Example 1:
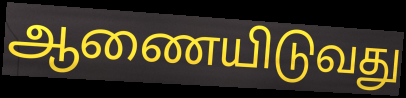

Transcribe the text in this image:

ஆணையிடுவது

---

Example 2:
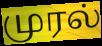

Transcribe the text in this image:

முரல்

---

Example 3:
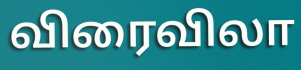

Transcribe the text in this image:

விரைவிலா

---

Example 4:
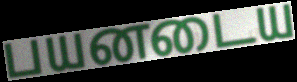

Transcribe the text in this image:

பயனடைய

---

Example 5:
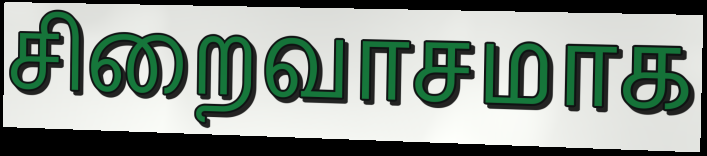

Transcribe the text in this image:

சிறைவாசமாக